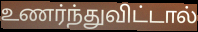
உணர்ந்துவிட்டால்